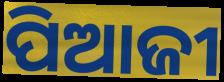
ପିଆଜୀ